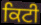
ਕਿਟੀ